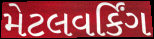
મેટલવર્કિંગ